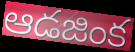
ఆడజింక